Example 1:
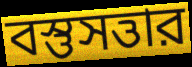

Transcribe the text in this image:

বস্তুসত্তার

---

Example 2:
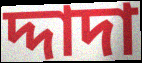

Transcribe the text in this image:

দ্দাদা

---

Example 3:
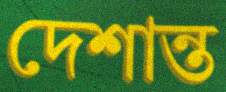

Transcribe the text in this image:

দেশান্ত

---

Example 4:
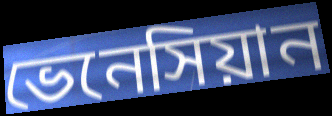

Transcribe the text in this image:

ভেনেসিয়ান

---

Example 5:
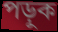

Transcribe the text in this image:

পড়ুক